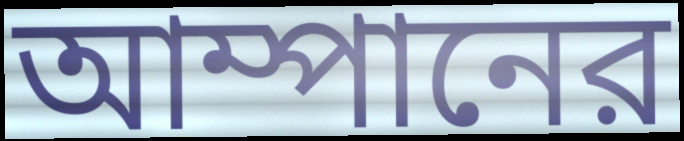
আম্পানের